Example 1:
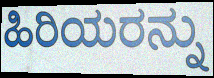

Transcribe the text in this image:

ಹಿರಿಯರನ್ನು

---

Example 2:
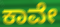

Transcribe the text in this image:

ಕಾವೇ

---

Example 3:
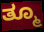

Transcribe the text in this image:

ತ್ಮೂ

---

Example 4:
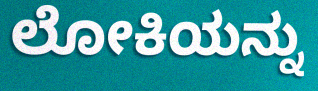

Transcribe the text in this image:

ಲೋಕಿಯನ್ನು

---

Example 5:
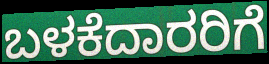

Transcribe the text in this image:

ಬಳಕೆದಾರರಿಗೆ